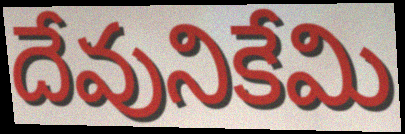
దేవునికేమి